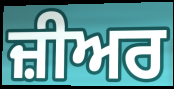
ਜ਼ੀਅਰ